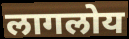
लागलोय